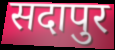
सदापुर